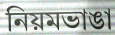
নিয়মভাঙা